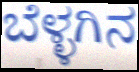
ಬೆಳ್ಳಗಿನ